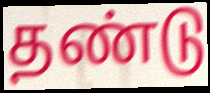
தண்டு